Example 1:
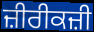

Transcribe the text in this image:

ਜ਼ੀਰੀਕਜ਼ੀ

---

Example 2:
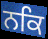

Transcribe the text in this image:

ਨਕਿ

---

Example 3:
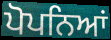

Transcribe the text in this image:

ਪੋਪਨਿਆਂ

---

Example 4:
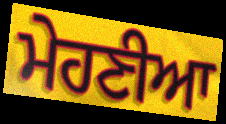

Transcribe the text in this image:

ਮੇਹਣੀਆ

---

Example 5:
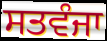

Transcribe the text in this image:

ਸਤਵੰਜਾ